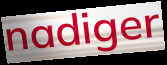
nadiger